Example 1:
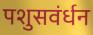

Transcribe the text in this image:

पशुसवंर्धन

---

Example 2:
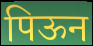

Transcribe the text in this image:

पिऊन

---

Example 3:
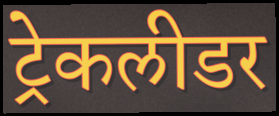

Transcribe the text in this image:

ट्रेकलीडर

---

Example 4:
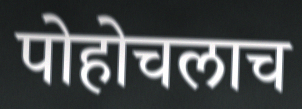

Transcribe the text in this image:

पोहोचलाच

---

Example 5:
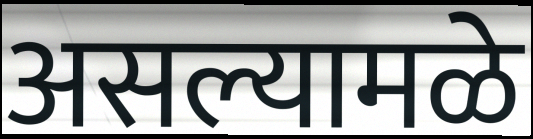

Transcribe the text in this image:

असल्यामळे